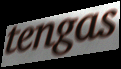
tengas